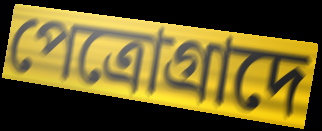
পেত্রোগ্রাদে